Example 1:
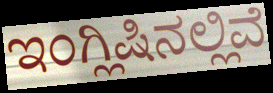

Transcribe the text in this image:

ಇಂಗ್ಲಿಷಿನಲ್ಲಿವೆ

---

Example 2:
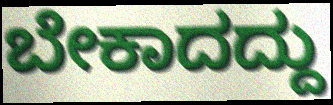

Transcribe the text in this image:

ಬೇಕಾದದ್ದು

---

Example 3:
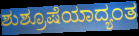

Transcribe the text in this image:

ಶುಶ್ರೂಷೆಯಾದ್ಯಂತ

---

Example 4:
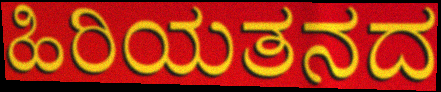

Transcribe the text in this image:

ಹಿರಿಯತನದ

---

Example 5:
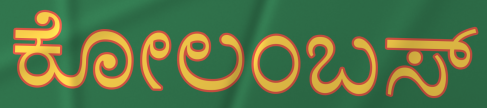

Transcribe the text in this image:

ಕೋಲಂಬಸ್